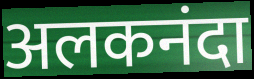
अलकनंदा